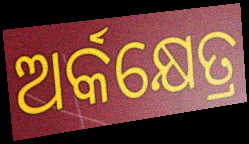
ଅର୍କକ୍ଷେତ୍ର